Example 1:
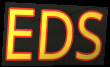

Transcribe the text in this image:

EDS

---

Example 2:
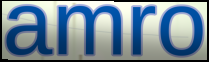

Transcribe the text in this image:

amro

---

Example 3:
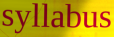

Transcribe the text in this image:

syllabus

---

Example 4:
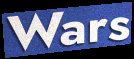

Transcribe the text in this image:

Wars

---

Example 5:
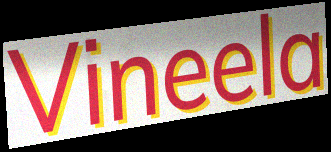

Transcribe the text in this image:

Vineela